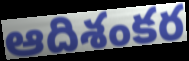
ఆదిశంకర